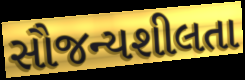
સૌજન્યશીલતા